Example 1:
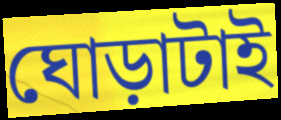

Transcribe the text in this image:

ঘোড়াটাই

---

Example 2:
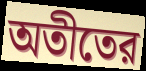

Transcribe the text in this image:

অতীতের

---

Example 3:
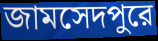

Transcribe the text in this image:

জামসেদপুরে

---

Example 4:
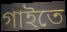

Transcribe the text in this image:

গাইতে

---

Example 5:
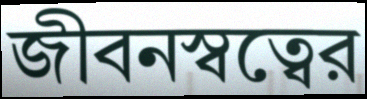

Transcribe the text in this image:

জীবনস্বত্বের